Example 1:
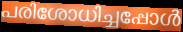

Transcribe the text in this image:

പരിശോധിച്ചപ്പോൾ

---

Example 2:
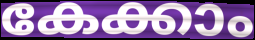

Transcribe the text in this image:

കേക്കാം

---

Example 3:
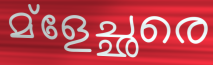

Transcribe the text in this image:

മ്ളേച്ഛരെ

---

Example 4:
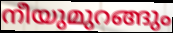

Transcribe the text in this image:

നീയുമുറങ്ങും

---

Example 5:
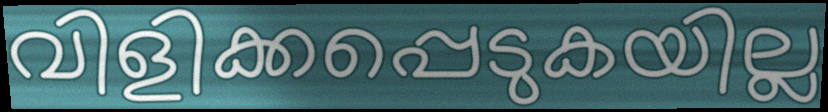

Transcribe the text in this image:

വിളിക്കപ്പെടുകയില്ല